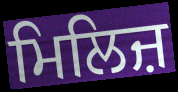
ਮਿਲਿਜ਼